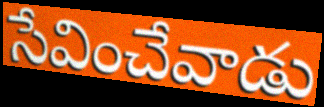
సేవించేవాడు